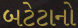
બટેટાનો